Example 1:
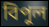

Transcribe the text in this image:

বিপুল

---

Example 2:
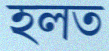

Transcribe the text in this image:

হলত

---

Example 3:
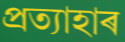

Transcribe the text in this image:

প্ৰত্যাহাৰ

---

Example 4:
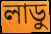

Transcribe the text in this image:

লাডু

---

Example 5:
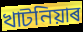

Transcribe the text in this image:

খাটনিয়াৰ